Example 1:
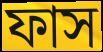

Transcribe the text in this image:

ফাস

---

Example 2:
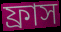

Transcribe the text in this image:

ফ্রাস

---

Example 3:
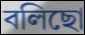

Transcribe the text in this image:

বলিছো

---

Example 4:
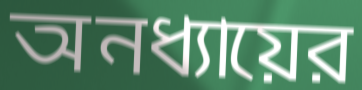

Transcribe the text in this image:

অনধ্যায়ের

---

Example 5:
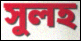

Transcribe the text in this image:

সুলহ